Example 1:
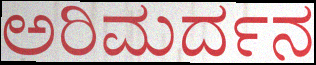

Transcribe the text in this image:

ಅರಿಮರ್ದನ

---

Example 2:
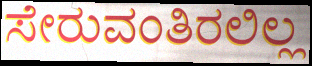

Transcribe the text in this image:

ಸೇರುವಂತಿರಲಿಲ್ಲ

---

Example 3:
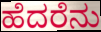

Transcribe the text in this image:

ಹೆದರೆನು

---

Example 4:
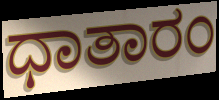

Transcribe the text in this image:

ಧಾತಾರಂ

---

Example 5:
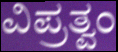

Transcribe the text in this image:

ವಿಪ್ರತ್ವಂ